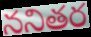
ననితర